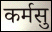
कर्मसु